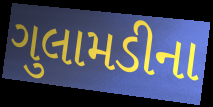
ગુલામડીના